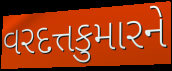
વરદત્તકુમારને